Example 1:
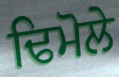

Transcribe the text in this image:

ਢਿਮੋਲੇ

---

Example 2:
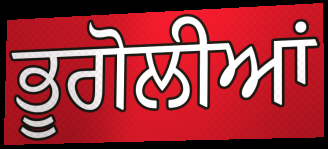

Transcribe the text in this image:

ਭੂਗੋਲੀਆਂ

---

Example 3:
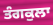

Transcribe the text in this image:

ਤੰਗਕੁਲਾ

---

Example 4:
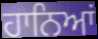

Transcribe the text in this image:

ਹਾਨਿਆਂ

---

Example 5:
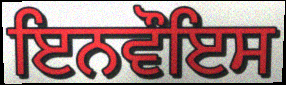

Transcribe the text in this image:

ਇਨਵੌਇਸ